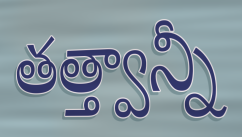
తత్త్వాన్నీ